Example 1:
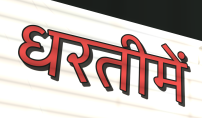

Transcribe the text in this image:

धरतीमें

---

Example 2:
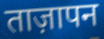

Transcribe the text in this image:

ताज़ापन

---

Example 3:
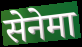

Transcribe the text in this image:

सेनेमा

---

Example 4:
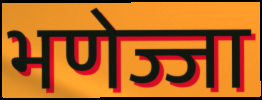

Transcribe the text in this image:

भणेज्जा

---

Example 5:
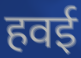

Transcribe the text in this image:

हवई